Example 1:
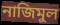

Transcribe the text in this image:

নাজিমুল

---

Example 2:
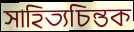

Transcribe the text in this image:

সাহিত্যচিন্তক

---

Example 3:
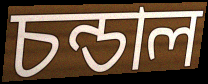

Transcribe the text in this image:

চন্ডাল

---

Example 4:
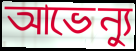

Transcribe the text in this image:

আভেন্যু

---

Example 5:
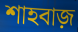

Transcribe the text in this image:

শাহবাজ়